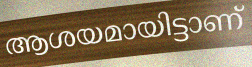
ആശയമായിട്ടാണ്